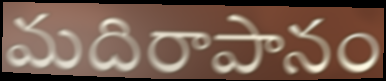
మదిరాపానం